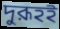
দুরূহই